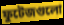
ফুটেজগুলো